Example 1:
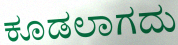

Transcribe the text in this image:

ಕೂಡಲಾಗದು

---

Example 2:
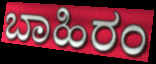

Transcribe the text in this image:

ಬಾಹಿರಂ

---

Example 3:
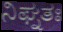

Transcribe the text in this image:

ನಿಘ್ನತಃ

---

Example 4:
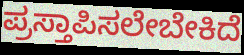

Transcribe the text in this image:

ಪ್ರಸ್ತಾಪಿಸಲೇಬೇಕಿದೆ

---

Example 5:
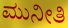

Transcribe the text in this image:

ಮುನೀತಿ